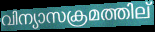
വിന്യാസക്രമത്തില്